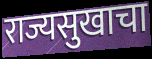
राज्यसुखाचा